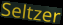
Seltzer